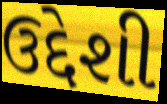
ઉદ્દેશી